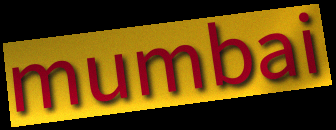
mumbai